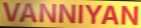
VANNIYAN